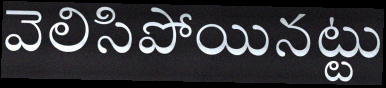
వెలిసిపోయినట్టు